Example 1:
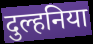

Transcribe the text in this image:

दुल्हनिया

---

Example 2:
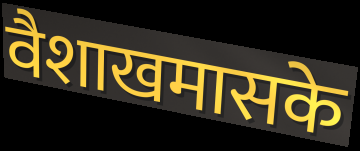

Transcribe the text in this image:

वैशाखमासके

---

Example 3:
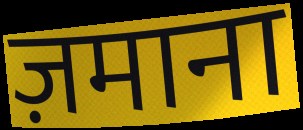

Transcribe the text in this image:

ज़माना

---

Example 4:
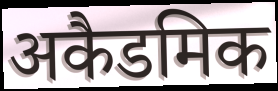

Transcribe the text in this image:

अकैडमिक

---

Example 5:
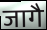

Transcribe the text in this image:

जागै